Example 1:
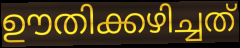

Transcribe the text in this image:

ഊതിക്കഴിച്ചത്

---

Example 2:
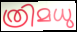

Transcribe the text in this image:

ത്രിമധു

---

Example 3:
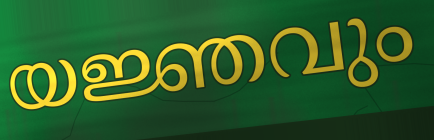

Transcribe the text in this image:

യജ്ഞവും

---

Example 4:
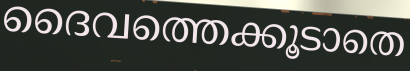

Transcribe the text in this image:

ദൈവത്തെക്കൂടാതെ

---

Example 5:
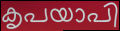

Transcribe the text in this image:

കൃപയാപി